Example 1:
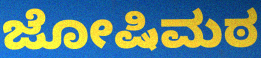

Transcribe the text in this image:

ಜೋಷಿಮಠ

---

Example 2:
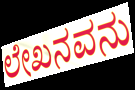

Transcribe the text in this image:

ಲೇಖನವನು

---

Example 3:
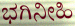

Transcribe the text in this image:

ಭಗಿನೀಹಿ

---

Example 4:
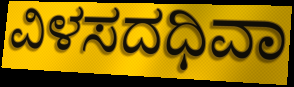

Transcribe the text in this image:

ವಿಳಸದಧಿವಾ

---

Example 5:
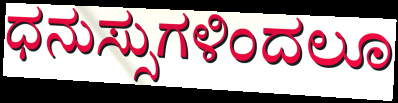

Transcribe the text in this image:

ಧನುಸ್ಸುಗಳಿಂದಲೂ